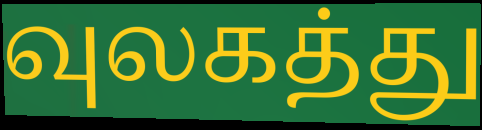
வுலகத்து